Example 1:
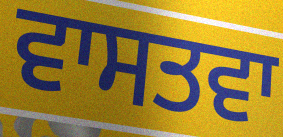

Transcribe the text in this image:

ਵਾਸਤਵਾ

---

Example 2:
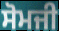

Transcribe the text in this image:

ਸੋਮਜੀ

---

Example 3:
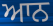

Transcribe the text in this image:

ਆਨ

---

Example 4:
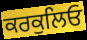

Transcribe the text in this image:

ਕਰਕੁਲਿਓ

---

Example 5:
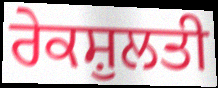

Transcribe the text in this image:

ਰੇਕਸ਼ੁਲਤੀ